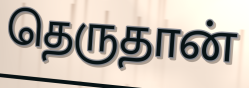
தெருதான்